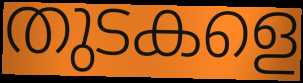
തുടകളെ